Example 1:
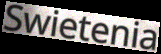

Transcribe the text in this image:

Swietenia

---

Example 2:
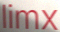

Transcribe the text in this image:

limx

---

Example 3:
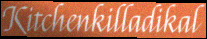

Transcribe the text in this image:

Kitchenkilladikal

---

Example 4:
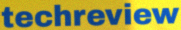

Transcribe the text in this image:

techreview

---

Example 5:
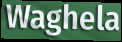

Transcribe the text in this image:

Waghela